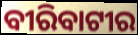
ବୀରିବାଟୀର